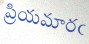
ప్రియమారఁ